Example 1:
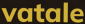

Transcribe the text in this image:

vatale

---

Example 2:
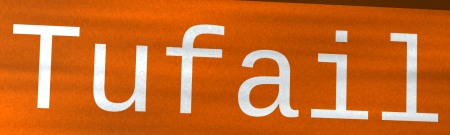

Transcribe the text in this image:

Tufail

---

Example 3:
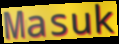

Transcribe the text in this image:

Masuk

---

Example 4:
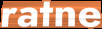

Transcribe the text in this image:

ratne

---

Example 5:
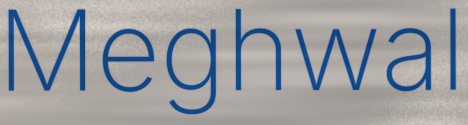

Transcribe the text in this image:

Meghwal